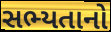
સભ્યતાનો